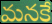
మనకే